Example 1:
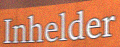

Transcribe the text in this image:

Inhelder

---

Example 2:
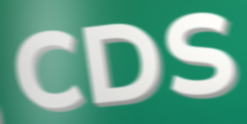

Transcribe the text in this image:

CDS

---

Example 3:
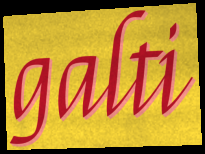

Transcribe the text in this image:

galti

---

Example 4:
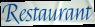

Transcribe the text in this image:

Restaurant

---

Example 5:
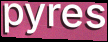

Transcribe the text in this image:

pyres